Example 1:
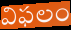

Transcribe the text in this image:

విఫలం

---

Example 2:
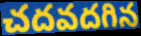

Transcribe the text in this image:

చదవదగిన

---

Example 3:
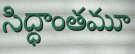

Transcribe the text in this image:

సిద్ధాంతమూ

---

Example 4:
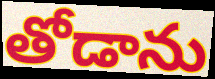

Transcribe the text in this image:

తోడాను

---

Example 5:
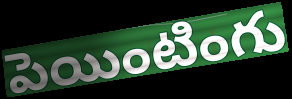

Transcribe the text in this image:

పెయింటింగు